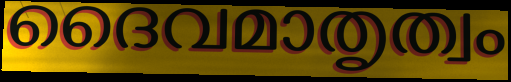
ദൈവമാതൃത്വം